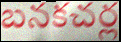
బనకచర్ల